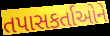
તપાસકર્તાઓને